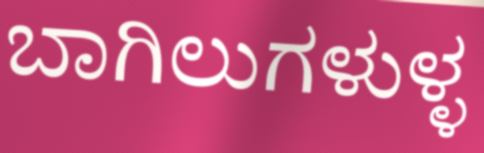
ಬಾಗಿಲುಗಳುಳ್ಳ